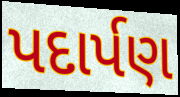
પદાર્પણ